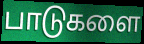
பாடுகளை